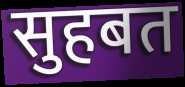
सुहबत